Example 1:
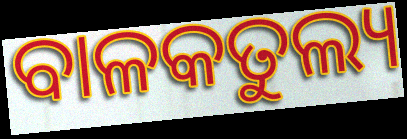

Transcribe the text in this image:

ବାଳକତୁଲ୍ୟ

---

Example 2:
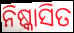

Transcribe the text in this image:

ନିଷ୍କାସିତ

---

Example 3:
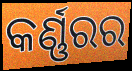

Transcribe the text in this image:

କର୍ଣ୍ଣରର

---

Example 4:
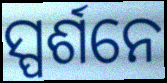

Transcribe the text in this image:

ସ୍ପର୍ଶନେ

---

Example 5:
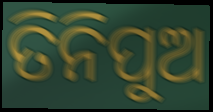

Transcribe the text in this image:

ତିନିପୁଅ